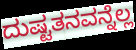
ದುಷ್ಟತನವನ್ನೆಲ್ಲ